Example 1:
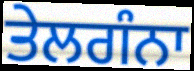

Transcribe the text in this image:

ਤੇਲਗੰਨਾ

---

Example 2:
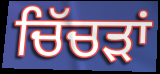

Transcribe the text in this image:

ਚਿੱਚੜਾਂ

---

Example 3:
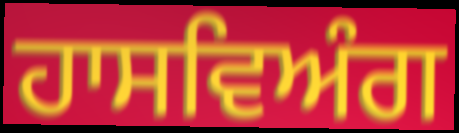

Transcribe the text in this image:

ਹਾਸਵਿਅੰਗ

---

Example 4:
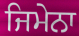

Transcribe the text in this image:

ਜਿਮੇਨਾ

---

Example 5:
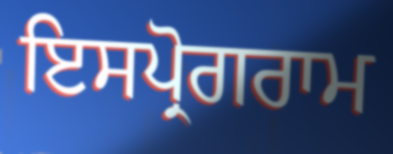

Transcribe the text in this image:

ਇਸਪ੍ਰੋਗਰਾਮ